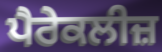
ਪੈਰੇਕਲੀਜ਼